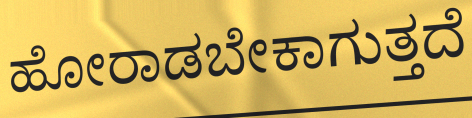
ಹೋರಾಡಬೇಕಾಗುತ್ತದೆ